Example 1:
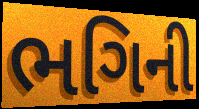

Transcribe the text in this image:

ભગિની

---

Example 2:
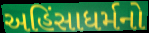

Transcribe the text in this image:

અહિંસાધર્મનો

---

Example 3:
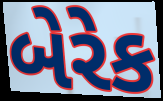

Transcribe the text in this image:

બેરેક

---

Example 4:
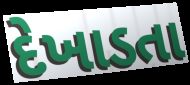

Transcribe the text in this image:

દેખાડતા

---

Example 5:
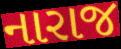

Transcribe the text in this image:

નારાજ